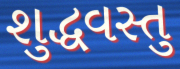
શુદ્ધવસ્તુ